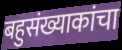
बहुसंख्याकांचा